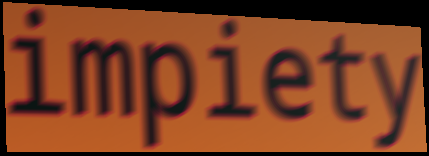
impiety